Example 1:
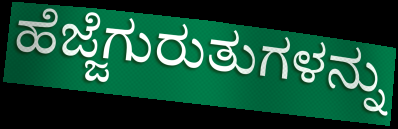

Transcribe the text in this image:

ಹೆಜ್ಜೆಗುರುತುಗಳನ್ನು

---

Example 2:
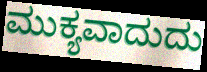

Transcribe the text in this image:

ಮುಕ್ಯವಾದುದು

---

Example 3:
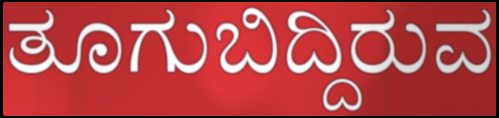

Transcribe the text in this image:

ತೂಗುಬಿದ್ದಿರುವ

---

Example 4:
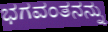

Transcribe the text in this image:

ಭಗವಂತನನ್ನು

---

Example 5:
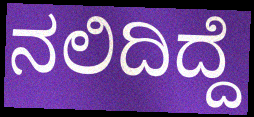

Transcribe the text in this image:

ನಲಿದಿದ್ದೆ